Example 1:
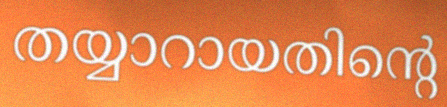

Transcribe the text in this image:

തയ്യാറായതിന്റെ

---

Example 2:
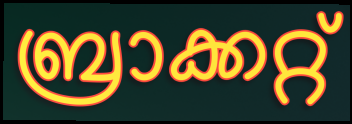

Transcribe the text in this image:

ബ്രാക്കറ്റ്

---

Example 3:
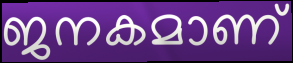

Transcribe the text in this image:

ജനകമാണ്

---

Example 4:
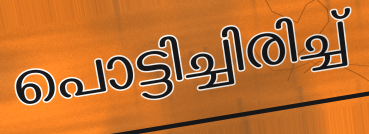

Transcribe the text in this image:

പൊട്ടിച്ചിരിച്ച്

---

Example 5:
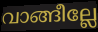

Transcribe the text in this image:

വാങ്ങീല്ലേ